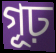
গূঢ়